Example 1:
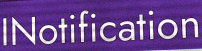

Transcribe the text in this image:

INotification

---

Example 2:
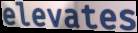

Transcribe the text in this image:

elevates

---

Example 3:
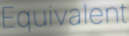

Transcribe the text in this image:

Equivalent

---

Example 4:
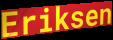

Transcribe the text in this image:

Eriksen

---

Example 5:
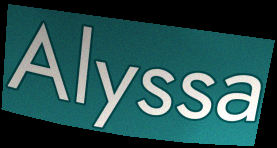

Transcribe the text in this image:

Alyssa